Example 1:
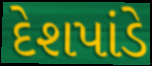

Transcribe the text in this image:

દેશપાંડે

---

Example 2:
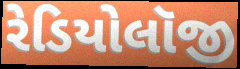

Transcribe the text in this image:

રેડિયોલૉજી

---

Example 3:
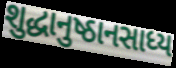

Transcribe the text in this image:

શુદ્ધાનુષ્ઠાનસાધ્ય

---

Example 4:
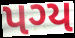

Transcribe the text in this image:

પગ્ય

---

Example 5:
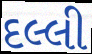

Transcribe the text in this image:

દલ્લી